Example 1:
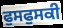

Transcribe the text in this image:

ਫੁਸਫੁਸਕੀ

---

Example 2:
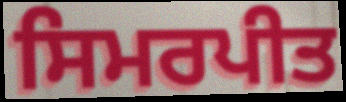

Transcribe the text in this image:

ਸਿਮਰਪੀਤ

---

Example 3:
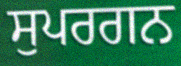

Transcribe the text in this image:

ਸੁਪਰਗਨ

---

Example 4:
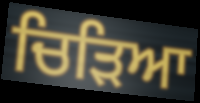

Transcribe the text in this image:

ਚਿੜਿਆ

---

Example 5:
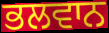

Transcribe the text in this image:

ਭਲਵਾਨ